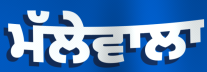
ਮੱਲੇਵਾਲਾ